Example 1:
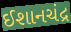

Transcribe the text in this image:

ઈશાનચંદ્ર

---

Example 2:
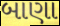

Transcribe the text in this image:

બાણા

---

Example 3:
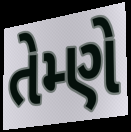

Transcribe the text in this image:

તેમ્ણે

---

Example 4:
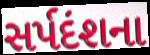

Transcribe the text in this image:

સર્પદંશના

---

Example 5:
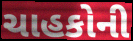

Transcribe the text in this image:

ચાહકોની